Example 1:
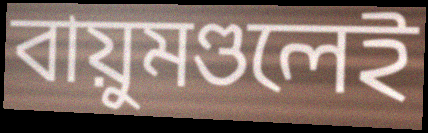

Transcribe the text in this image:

বায়ুমণ্ডলেই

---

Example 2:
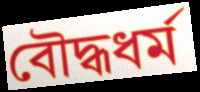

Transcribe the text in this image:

বৌদ্ধধর্ম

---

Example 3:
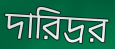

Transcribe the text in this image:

দারিদ্রর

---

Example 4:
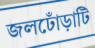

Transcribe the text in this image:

জলঢোঁড়াটি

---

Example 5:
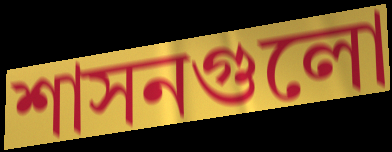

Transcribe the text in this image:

শাসনগুলো